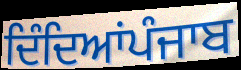
ਦਿੰਦਿਆਂਪੰਜਾਬ